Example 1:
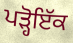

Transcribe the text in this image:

ਪੜ੍ਹੋਇੱਕ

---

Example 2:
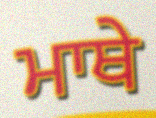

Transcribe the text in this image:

ਮਾਥੇ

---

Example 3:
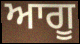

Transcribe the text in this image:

ਆਗੂ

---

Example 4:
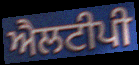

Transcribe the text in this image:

ਐਲਟੀਪੀ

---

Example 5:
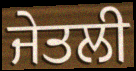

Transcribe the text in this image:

ਜੇਤਲੀ